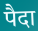
पैदा